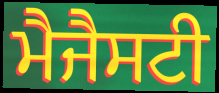
ਮੈਜੈਸਟੀ